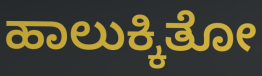
ಹಾಲುಕ್ಕಿತೋ